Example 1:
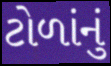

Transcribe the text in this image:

ટોળાંનું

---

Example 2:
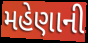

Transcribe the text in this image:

મહેણાની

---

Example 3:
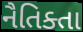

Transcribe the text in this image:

નૈતિક્તા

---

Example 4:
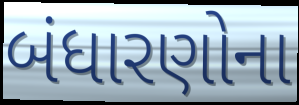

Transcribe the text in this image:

બંધારણોના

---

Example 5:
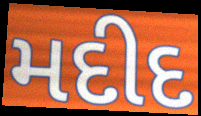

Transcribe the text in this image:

મદીદ